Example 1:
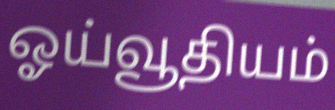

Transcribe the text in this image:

ஓய்வூதியம்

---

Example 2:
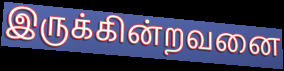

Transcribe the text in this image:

இருக்கின்றவனை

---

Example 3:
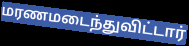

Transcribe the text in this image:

மரணமடைந்துவிட்டார்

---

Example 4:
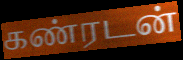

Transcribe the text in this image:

கண்ரடன்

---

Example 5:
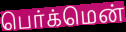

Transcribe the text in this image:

பெர்க்மென்